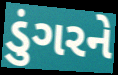
ડુંગરને